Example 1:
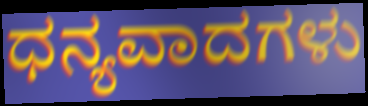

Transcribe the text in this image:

ಧನ್ಯವಾದಗಳು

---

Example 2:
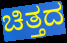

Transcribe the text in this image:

ಚಿತ್ತದ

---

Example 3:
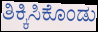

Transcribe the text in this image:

ತಿಕ್ಕಿಸಿಕೊಂಡು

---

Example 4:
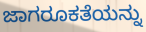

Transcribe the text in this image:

ಜಾಗರೂಕತೆಯನ್ನು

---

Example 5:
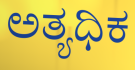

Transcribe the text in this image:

ಅತ್ಯಧಿಕ